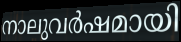
നാലുവർഷമായി